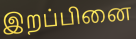
இறப்பினை